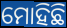
ମୋହିଛି